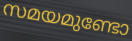
സമയമുണ്ടോ